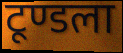
टूण्डला